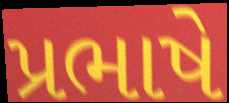
પ્રભાષે